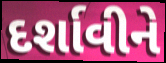
દર્શાવીને